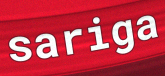
sariga